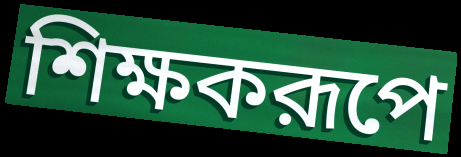
শিক্ষকরূপে